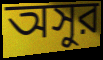
অসুর